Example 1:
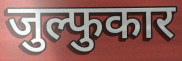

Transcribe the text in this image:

जुल्फुकार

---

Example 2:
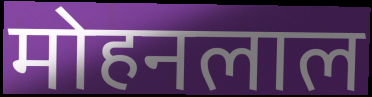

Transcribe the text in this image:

मोहनलाल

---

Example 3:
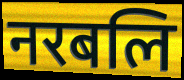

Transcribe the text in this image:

नरबलि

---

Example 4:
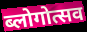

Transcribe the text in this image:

ब्लोगोत्सव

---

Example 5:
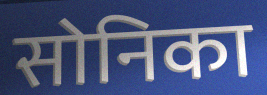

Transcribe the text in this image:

सोनिका